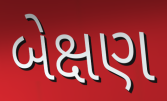
બેક્ષણ